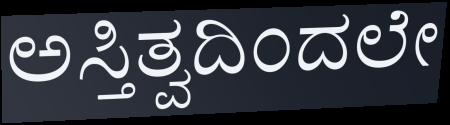
ಅಸ್ತಿತ್ವದಿಂದಲೇ